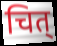
चित्